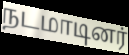
நடமாடினர்